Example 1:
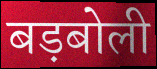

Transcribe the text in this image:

बड़बोली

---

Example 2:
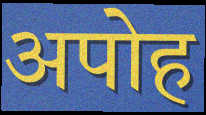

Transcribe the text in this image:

अपोह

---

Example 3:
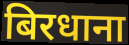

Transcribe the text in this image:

बिरधाना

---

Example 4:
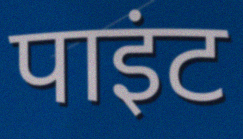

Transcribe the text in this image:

पाइंट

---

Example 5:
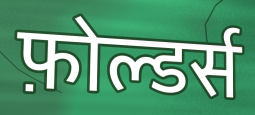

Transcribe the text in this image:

फ़ोल्डर्स